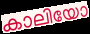
കാലിയോ